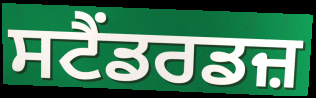
ਸਟੈਂਡਰਡਜ਼